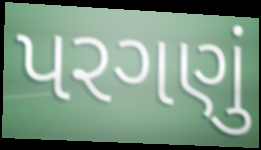
પરગણું